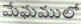
మేఘములో